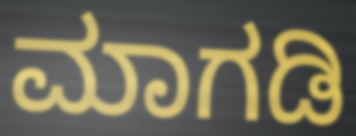
ಮಾಗಡಿ